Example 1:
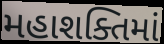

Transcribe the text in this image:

મહાશક્તિમાં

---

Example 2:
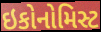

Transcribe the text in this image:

ઇકોનોમિસ્ટ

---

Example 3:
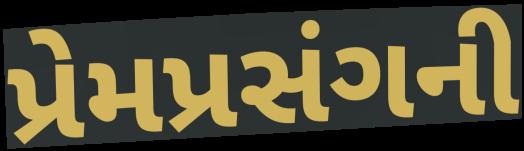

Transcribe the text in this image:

પ્રેમપ્રસંગની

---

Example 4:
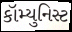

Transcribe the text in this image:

કૉમ્યુનિસ્ટ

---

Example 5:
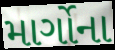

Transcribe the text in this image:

માર્ગોના